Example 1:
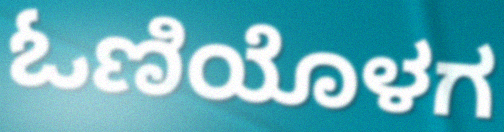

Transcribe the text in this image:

ಓಣಿಯೊಳಗ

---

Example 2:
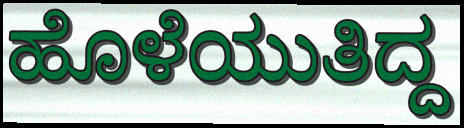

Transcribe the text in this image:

ಹೊಳೆಯುತಿದ್ದ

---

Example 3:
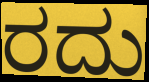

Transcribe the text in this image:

ರದು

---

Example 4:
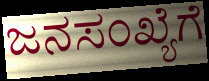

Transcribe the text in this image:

ಜನಸಂಖ್ಯೆಗೆ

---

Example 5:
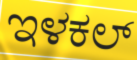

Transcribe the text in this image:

ಇಳಕಲ್